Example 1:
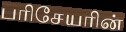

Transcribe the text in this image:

பரிசேயரின்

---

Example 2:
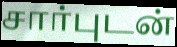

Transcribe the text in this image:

சார்புடன்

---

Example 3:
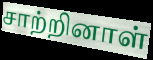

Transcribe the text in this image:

சாற்றினாள்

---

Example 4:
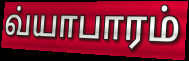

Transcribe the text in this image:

வ்யாபாரம்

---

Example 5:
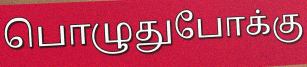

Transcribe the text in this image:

பொழுதுபோக்கு